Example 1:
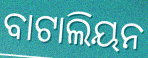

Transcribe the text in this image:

ବାଟାଲିୟନ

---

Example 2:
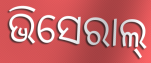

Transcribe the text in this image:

ଭିସେରାଲ୍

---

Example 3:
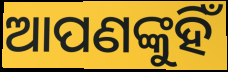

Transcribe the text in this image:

ଆପଣଙ୍କୁହିଁ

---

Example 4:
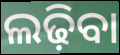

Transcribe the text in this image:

ଲଢ଼ିବା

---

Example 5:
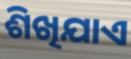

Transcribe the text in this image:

ଶିଖିଯାଏ